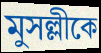
মুসল্লীকে